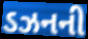
ડઝનની